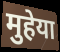
मुहेया